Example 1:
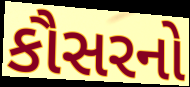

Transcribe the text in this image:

કૌસરનો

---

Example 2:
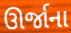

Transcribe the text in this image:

ઊર્જાના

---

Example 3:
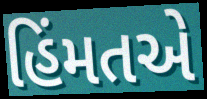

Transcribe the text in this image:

હિંમતએ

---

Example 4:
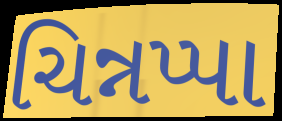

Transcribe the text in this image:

ચિન્નપ્પા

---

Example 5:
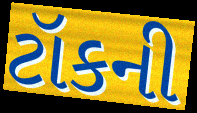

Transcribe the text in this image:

ટૉકની